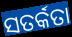
ସତର୍କତା